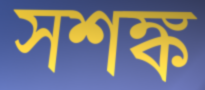
সশঙ্ক